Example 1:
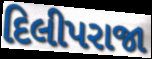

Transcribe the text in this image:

દિલીપરાજા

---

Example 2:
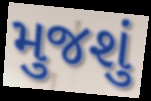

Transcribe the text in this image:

મુજશું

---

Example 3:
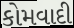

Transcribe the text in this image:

કોમવાદી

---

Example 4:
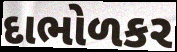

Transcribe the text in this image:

દાભોળકર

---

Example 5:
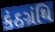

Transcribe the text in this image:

કંઠગ્રંથિ